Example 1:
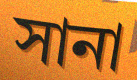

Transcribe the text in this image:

সানা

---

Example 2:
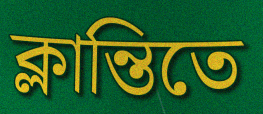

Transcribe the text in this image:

ক্লান্তিতে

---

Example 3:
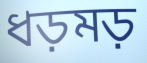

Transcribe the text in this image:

ধড়মড়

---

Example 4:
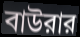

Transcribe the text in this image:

বাউরার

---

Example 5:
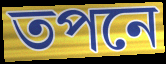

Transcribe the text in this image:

তপনে